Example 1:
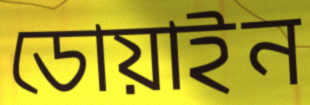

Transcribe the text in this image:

ডোয়াইন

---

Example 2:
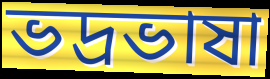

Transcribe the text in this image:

ভদ্রভাষা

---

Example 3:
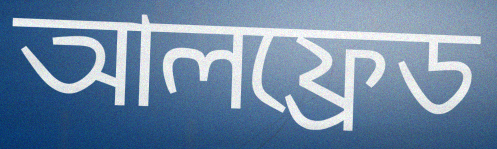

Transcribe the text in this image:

আলফ্রেড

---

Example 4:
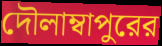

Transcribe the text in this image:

দৌলাম্বাপুরের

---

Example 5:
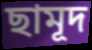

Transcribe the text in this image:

ছামূদ